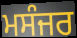
ਮਸੰਜਰ